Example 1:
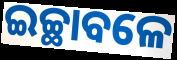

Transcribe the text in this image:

ଇଚ୍ଛାବଳେ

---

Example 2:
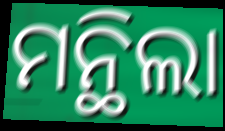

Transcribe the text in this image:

ମନ୍ଥିଲା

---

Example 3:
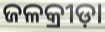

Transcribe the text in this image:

ଜଳକ୍ରୀଡ଼ା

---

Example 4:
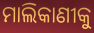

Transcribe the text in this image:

ମାଲିକାଣୀକୁ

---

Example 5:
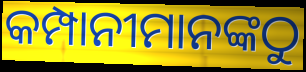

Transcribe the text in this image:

କମ୍ପାନୀମାନଙ୍କଠୁ